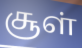
சூள்